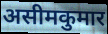
असीमकुमार